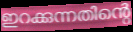
ഇറക്കുന്നതിന്റെ